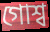
গোশ্ব